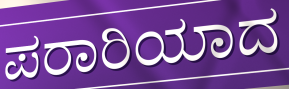
ಪರಾರಿಯಾದ